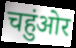
चहुंओर